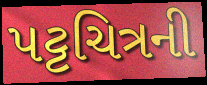
પટ્ટચિત્રની